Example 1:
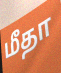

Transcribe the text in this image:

மீதா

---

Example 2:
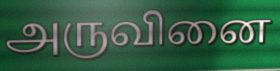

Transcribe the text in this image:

அருவினை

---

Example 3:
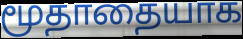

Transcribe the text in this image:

மூதாதையாக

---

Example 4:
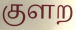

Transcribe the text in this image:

குளற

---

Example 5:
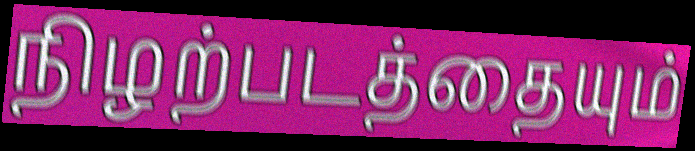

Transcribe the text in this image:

நிழற்படத்தையும்